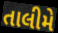
તાલીમે